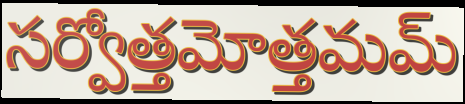
సర్వోత్తమోత్తమమ్